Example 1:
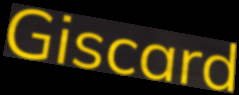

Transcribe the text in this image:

Giscard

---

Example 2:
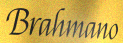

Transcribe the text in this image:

Brahmano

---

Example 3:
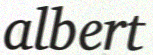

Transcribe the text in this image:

albert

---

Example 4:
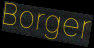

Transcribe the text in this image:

Borger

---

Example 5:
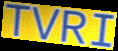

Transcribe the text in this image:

TVRI